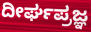
ದೀರ್ಘಪ್ರಜ್ಞ